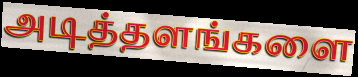
அடித்தளங்களை